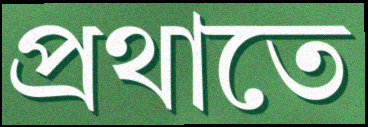
প্ৰথাতে